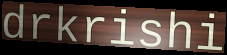
drkrishi